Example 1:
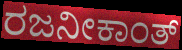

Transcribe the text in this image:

ರಜನೀಕಾಂತ್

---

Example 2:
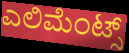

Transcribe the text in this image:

ಎಲಿಮೆಂಟ್ಸ್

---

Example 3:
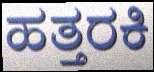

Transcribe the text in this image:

ಹತ್ತರಕಿ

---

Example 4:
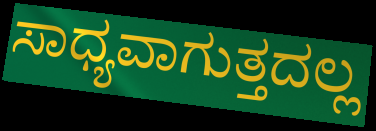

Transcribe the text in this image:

ಸಾಧ್ಯವಾಗುತ್ತದಲ್ಲ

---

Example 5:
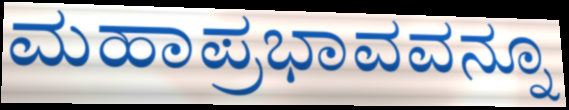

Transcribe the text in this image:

ಮಹಾಪ್ರಭಾವವನ್ನೂ